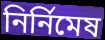
নির্নিমেষ